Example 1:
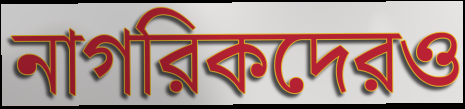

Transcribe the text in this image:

নাগরিকদেরও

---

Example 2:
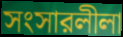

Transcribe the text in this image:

সংসারলীলা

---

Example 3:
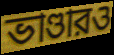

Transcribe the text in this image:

ভাণ্ডারও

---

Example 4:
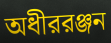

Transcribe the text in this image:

অধীররঞ্জন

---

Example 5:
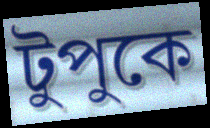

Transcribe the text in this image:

টুপুকে